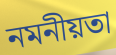
নমনীয়তা